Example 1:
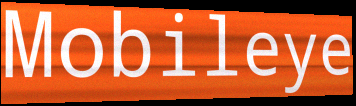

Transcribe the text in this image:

Mobileye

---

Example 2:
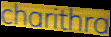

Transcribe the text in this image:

charithra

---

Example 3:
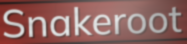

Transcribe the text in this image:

Snakeroot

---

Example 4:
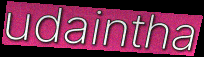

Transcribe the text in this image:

udaintha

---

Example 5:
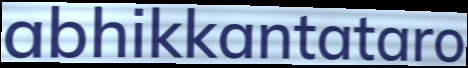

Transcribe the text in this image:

abhikkantataro